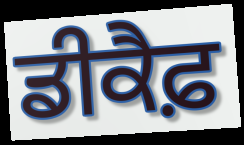
ਡੀਕੈਫ਼